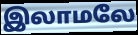
இலாமலே